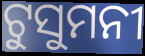
ଟୁସୁମନୀ